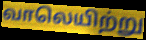
வாலெயிற்று